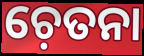
ଚ଼େତନା